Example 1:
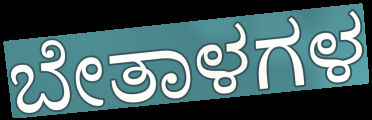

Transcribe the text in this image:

ಬೇತಾಳಗಳ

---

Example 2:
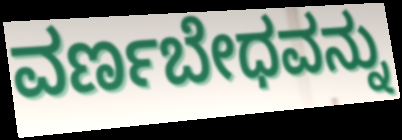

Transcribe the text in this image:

ವರ್ಣಬೇಧವನ್ನು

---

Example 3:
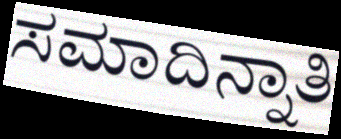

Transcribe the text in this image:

ಸಮಾದಿನ್ನಾತಿ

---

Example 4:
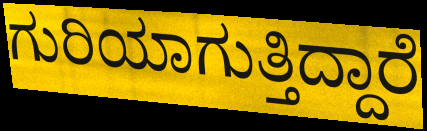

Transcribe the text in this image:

ಗುರಿಯಾಗುತ್ತಿದ್ದಾರೆ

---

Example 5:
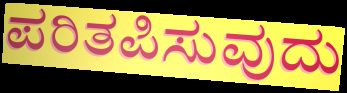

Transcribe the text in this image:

ಪರಿತಪಿಸುವುದು